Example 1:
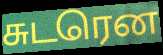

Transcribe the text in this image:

சுடரென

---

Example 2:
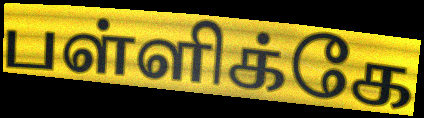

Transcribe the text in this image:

பள்ளிக்கே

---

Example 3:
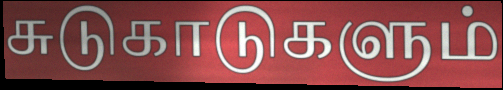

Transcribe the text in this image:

சுடுகாடுகளும்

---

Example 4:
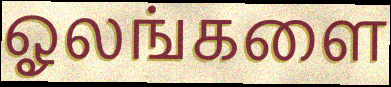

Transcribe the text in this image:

ஓலங்களை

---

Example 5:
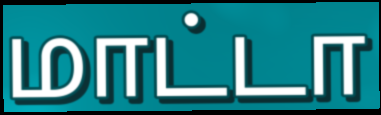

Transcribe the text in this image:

மாட்டா